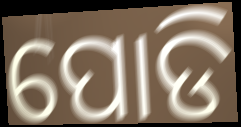
ପୋଡି